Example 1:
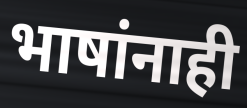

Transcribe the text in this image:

भाषांनाही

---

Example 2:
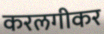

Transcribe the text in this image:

करलगीकर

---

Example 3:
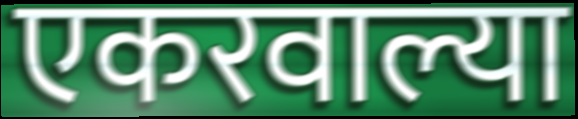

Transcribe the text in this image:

एकरवाल्या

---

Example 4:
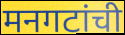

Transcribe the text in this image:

मनगटांची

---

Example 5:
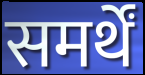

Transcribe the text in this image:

समर्थें